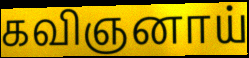
கவிஞனாய்